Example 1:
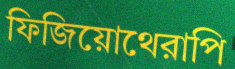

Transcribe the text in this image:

ফিজিয়োথেরাপি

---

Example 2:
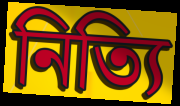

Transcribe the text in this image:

নিত্যি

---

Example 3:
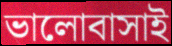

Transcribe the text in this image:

ভালোবাসাই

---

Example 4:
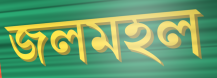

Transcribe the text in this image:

জলমহল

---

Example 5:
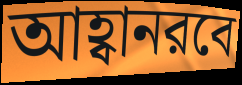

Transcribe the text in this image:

আহ্বানরবে